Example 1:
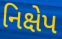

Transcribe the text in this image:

નિક્ષેપ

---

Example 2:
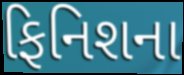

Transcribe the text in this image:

ફિનિશના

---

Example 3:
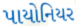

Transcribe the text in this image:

પાયોનિયર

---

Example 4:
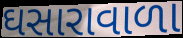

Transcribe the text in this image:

ઘસારાવાળા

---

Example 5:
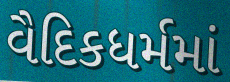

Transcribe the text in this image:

વૈદિકધર્મમાં